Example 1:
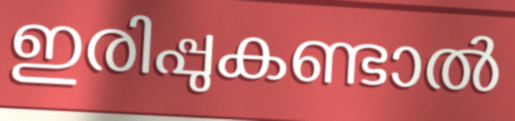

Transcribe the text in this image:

ഇരിപ്പുകണ്ടാൽ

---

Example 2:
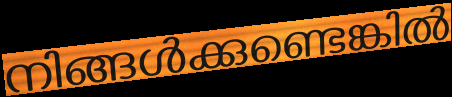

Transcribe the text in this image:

നിങ്ങൾക്കുണ്ടെങ്കിൽ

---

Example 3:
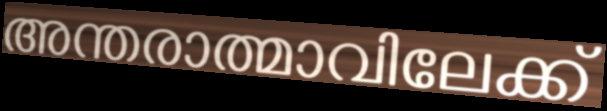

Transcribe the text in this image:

അന്തരാത്മാവിലേക്ക്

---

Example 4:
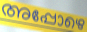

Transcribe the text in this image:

അപ്പോഴെ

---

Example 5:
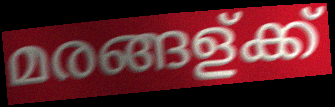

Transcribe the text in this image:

മരങ്ങള്ക്ക്